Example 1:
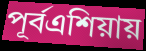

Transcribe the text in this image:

পূর্বএশিয়ায়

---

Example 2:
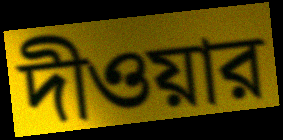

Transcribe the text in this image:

দীওয়ার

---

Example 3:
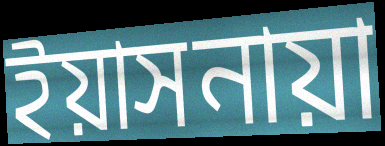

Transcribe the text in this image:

ইয়াসনায়া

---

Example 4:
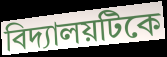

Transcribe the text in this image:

বিদ্যালয়টিকে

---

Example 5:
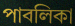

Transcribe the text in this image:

পাবলিকা